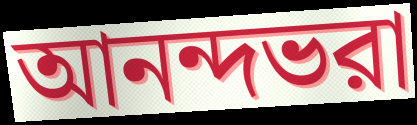
আনন্দভরা